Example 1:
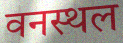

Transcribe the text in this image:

वनस्थल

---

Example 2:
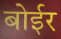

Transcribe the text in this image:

बोईर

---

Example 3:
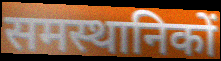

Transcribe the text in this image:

समस्थानिकों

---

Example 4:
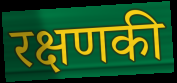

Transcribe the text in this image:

रक्षणकी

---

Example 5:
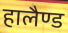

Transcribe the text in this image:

हालैण्ड